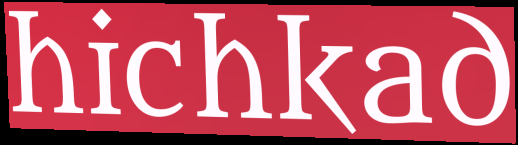
hichkad